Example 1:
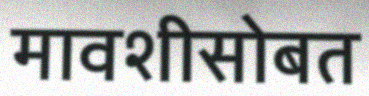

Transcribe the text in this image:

मावशीसोबत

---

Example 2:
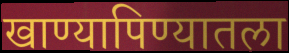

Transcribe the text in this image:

खाण्यापिण्यातला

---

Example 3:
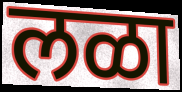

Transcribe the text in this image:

लळा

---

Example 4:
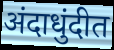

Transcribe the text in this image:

अंदाधुंदीत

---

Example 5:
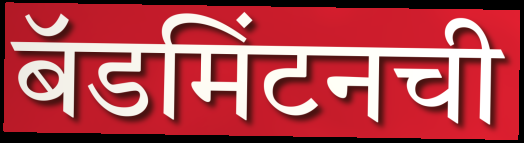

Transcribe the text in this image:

बॅडमिंटनची